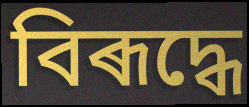
বিৰূদ্ধে